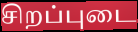
சிறப்புடை